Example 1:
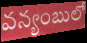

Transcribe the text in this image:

వన్యంబులో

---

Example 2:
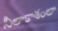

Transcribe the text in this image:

నీలాకాశంలా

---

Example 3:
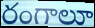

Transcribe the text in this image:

రంగాలూ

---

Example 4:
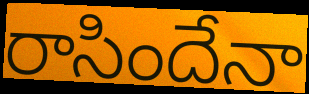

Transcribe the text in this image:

రాసిందేనా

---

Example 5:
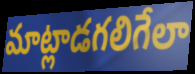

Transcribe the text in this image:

మాట్లాడగలిగేలా